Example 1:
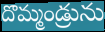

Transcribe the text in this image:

దొమ్మండ్రును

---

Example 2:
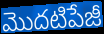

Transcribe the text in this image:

మొదటిపేజీ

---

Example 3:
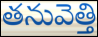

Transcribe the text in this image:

తనువెత్తి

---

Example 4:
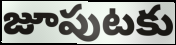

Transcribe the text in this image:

జూపుటకు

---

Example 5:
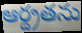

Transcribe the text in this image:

ఆర్ద్రతను